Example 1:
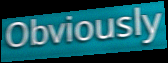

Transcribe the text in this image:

Obviously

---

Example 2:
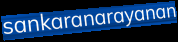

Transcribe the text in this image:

sankaranarayanan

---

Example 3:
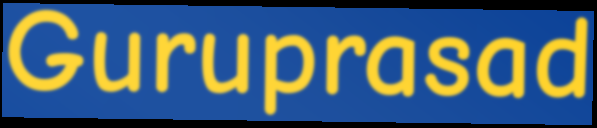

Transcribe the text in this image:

Guruprasad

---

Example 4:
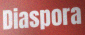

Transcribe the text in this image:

Diaspora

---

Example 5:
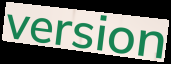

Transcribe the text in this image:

version